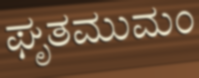
ಘೃತಮುಮಂ